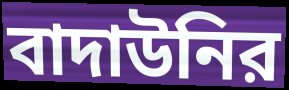
বাদাউনির